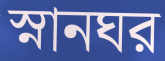
স্নানঘর